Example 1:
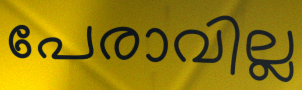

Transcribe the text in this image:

പേരാവില്ല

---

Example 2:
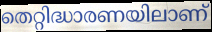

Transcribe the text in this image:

തെറ്റിദ്ധാരണയിലാണ്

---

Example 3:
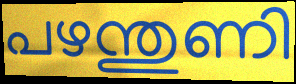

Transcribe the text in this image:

പഴന്തുണി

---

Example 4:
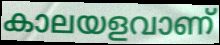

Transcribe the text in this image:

കാലയളവാണ്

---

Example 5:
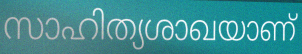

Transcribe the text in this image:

സാഹിത്യശാഖയാണ്